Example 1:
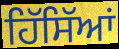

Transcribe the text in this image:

ਹਿੱਸਿੱਆਂ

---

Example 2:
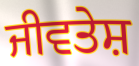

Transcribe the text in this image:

ਜੀਵਤੇਸ਼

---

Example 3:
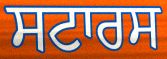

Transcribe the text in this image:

ਸਟਾਰਸ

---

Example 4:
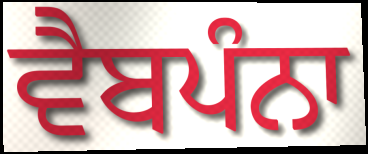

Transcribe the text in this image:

ਵੈਬਪੰਨਾ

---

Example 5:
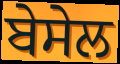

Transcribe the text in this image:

ਬੇਸੇਲ